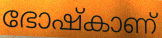
ഭോഷ്കാണ്